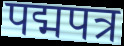
पद्मपत्र